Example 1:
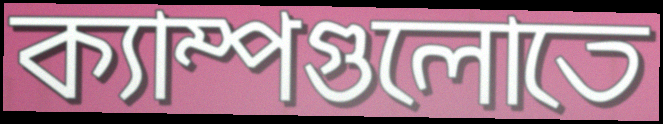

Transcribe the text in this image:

ক্যাম্পগুলোতে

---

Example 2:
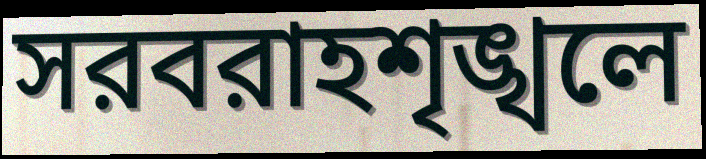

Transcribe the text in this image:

সরবরাহশৃঙ্খলে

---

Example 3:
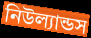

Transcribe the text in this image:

নিউল্যান্ডস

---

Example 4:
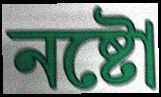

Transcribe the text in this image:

নষ্টো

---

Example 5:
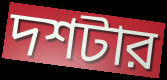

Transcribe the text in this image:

দশটার